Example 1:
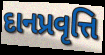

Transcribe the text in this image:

દાનપ્રવૃત્તિ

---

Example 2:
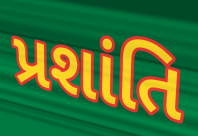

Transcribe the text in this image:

પ્રશાંતિ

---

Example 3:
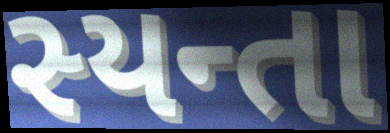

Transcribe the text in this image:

સ્યન્તા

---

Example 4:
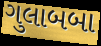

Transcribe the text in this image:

ગુલાબબા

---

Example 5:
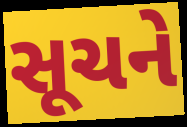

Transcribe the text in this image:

સૂચને